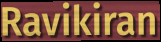
Ravikiran